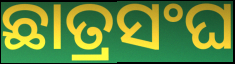
ଛାତ୍ରସଂଘ